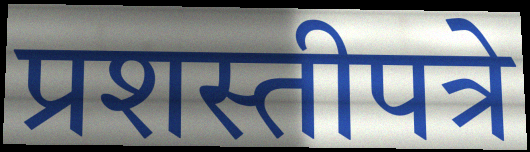
प्रशस्तीपत्रे